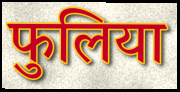
फुलिया